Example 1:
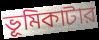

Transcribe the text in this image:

ভূমিকাটার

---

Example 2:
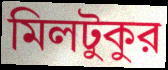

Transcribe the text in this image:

মিলটুকুর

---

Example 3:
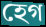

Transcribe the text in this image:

হেগ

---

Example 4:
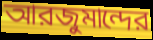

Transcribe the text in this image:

আরজুমান্দের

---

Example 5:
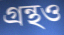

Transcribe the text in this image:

গ্রন্থও